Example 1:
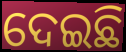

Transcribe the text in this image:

ଦେଇଛି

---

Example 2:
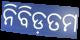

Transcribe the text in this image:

ନିବିଡ଼ତମ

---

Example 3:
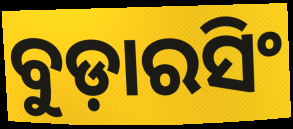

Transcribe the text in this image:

ବୁଡ଼ାରସିଂ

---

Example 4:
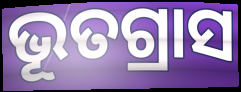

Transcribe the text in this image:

ଭୂତଗ୍ରାସ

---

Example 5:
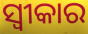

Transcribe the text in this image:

ସ୍ବୀକାର